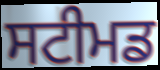
ਸਟੀਮਡ